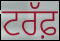
ਟਰੱਫ਼